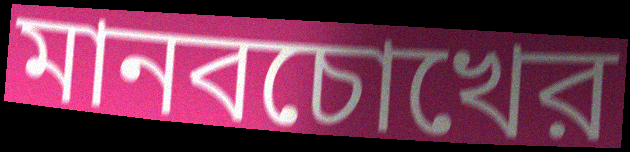
মানবচোখের